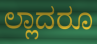
ಲ್ಲಾದರೂ